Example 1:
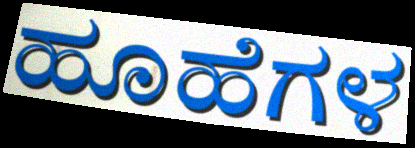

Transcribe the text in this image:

ಹೂಹೆಗಳ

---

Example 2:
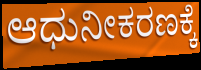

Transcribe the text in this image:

ಆಧುನೀಕರಣಕ್ಕೆ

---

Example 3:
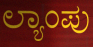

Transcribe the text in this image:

ಲ್ಯಾಂಪು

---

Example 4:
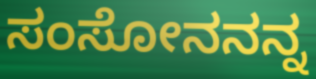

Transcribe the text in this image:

ಸಂಸೋನನನ್ನ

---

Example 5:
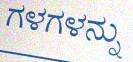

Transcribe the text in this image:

ಗಳಗಳನ್ನು